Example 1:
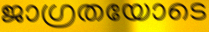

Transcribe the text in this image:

ജാഗ്രതയോടെ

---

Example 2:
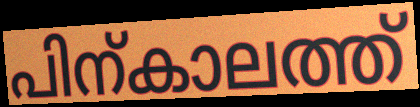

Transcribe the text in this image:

പിന്കാലത്ത്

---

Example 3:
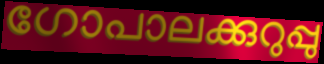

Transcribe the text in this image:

ഗോപാലക്കുറുപ്പു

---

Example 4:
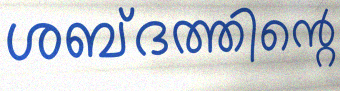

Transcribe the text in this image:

ശബ്ദത്തിന്റെ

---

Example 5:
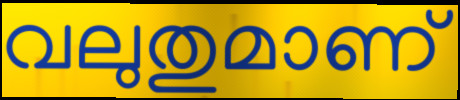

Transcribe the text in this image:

വലുതുമാണ്